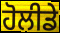
ਹੋਲੀਡੇ